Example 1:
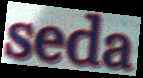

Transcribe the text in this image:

seda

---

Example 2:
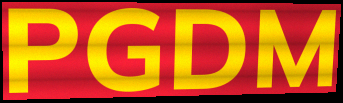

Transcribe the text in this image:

PGDM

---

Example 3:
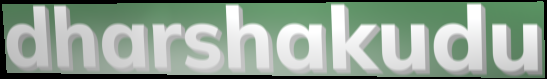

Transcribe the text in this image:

dharshakudu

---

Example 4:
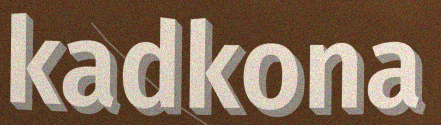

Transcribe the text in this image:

kadkona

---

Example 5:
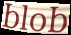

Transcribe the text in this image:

blob